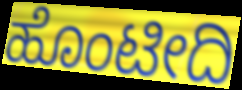
ಹೊಂಟೀದಿ